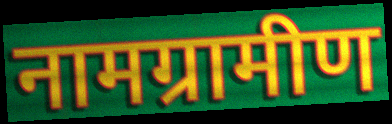
नामग्रामीण